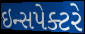
ઇન્સપેક્ટરે